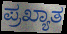
ಪ್ರಖ್ಯಾತ